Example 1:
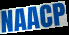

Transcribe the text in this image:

NAACP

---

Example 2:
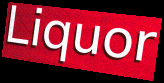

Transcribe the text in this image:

Liquor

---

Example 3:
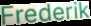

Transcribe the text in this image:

Frederik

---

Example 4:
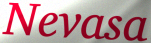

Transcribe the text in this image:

Nevasa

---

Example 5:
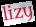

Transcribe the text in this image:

lizy